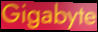
Gigabyte